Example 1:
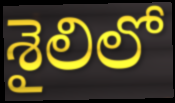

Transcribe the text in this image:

శైలిలో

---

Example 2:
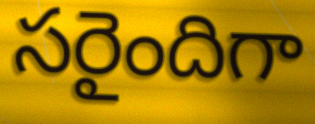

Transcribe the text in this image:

సరైందిగా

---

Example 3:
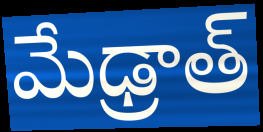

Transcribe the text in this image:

మేఢ్రాత్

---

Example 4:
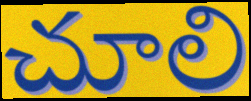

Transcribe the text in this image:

చూలి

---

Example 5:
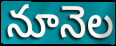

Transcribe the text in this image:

నూనెల